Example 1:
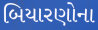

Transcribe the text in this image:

બિયારણોના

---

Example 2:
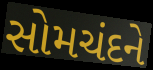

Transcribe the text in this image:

સોમચંદને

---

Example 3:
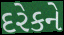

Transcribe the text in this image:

દરેકને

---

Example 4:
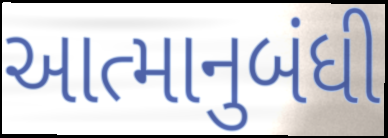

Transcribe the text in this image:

આત્માનુબંધી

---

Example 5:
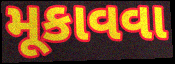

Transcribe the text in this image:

મૂકાવવા